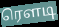
ரெளடி